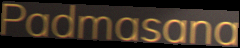
Padmasana